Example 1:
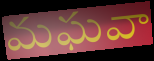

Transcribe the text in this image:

మఘవా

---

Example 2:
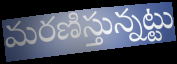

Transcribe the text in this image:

మరణిస్తున్నట్టు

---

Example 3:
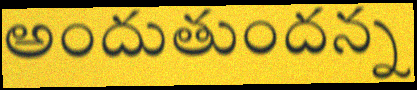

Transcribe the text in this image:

అందుతుందన్న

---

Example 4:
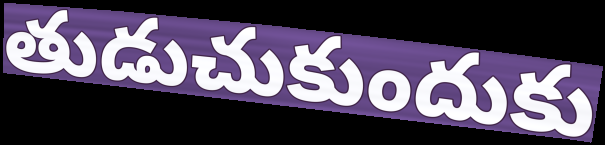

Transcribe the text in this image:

తుడుచుకుందుకు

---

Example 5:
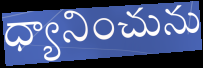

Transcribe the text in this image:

ధ్యానించును